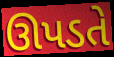
ઊપડતે